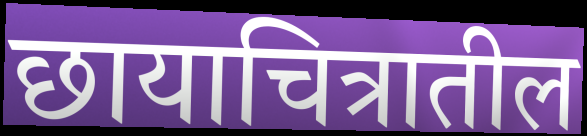
छायाचित्रातील